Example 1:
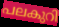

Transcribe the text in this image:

പലകുറി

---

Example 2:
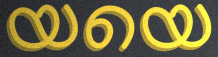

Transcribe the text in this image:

യയെ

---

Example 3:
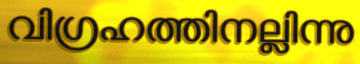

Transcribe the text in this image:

വിഗ്രഹത്തിനല്ലിന്നു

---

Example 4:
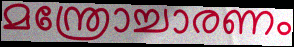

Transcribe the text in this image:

മന്ത്രോച്ചാരണം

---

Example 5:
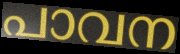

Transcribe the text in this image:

പാവന